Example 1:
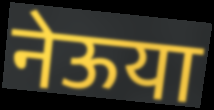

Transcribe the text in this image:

नेऊया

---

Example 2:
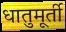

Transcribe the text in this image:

धातुमूर्ती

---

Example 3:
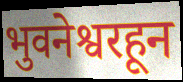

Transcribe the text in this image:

भुवनेश्वरहून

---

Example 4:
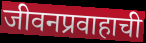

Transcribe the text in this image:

जीवनप्रवाहाची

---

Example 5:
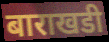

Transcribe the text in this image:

बाराखडी